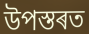
উপস্তৰত